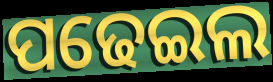
ପଢେଇଲ